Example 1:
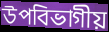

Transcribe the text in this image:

উপবিভাগীয়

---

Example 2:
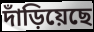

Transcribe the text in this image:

দাঁড়িয়েছে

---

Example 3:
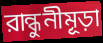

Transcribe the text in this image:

রান্ধুনীমূড়া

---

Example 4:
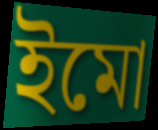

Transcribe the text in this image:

ইমো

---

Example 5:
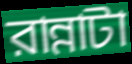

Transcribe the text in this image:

রান্নাটা